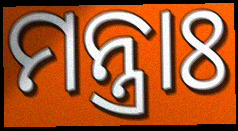
ମନ୍ତ୍ରାଃ